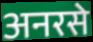
अनरसे